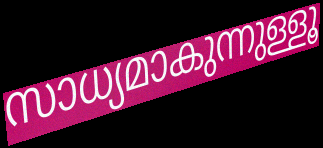
സാധ്യമാകുന്നുള്ളൂ